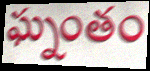
ఘ్నంతం